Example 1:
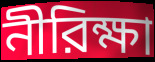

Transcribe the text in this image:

নীরিক্ষা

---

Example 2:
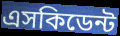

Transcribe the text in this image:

এসকিডেন্ট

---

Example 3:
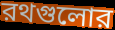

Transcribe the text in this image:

রথগুলোর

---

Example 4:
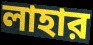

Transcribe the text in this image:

লাহার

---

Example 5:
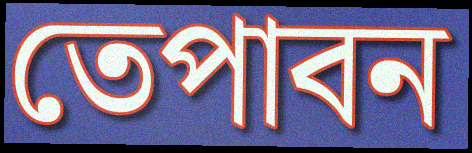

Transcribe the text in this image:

তেপাবন